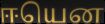
ஈயென